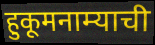
हुकूमनाम्याची